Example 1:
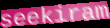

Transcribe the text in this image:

seekiram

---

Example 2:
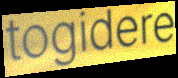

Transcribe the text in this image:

togidere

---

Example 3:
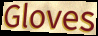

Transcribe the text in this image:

Gloves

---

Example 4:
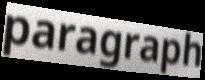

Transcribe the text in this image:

paragraph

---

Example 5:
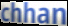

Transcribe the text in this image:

chhan